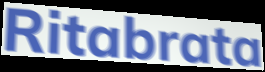
Ritabrata